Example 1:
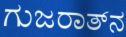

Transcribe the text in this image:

ಗುಜರಾತ್‌ನ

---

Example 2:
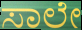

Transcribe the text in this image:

ಸಾಲೇ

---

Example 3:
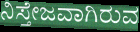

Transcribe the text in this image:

ನಿಸ್ತೇಜವಾಗಿರುವ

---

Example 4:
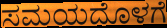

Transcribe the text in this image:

ಸಮಯದೊಳಗೆ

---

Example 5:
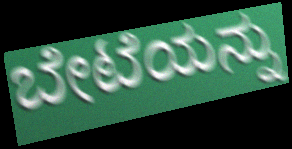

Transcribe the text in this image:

ಬೇಟೆಯನ್ನು